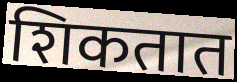
शिकतात